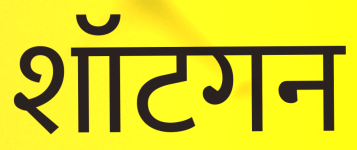
शॉटगन